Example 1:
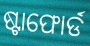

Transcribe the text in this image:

ଷ୍ଟାଫୋର୍ଡ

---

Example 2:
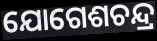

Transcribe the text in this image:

ଯୋଗେଶଚନ୍ଦ୍ର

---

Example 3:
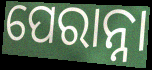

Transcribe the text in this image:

ପେରାନ୍ନା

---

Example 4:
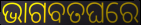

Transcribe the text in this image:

ଭାଗବତଘରେ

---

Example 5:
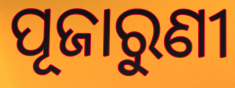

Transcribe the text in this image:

ପୂଜାରୁଣୀ